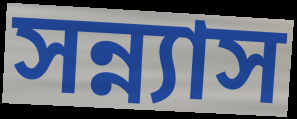
সন্ন্যাস